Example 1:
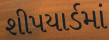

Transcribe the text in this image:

શીપયાર્ડમાં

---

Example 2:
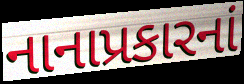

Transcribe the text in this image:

નાનાપ્રકારનાં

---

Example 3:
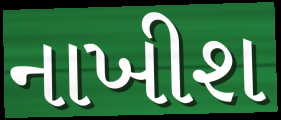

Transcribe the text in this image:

નાખીશ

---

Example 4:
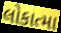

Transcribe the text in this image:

લોકાત્મા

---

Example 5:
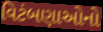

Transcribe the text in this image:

વિટંબણાઓનો